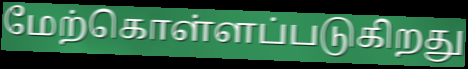
மேற்கொள்ளப்படுகிறது